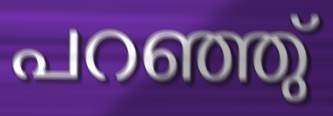
പറഞ്ഞു്